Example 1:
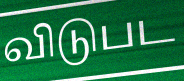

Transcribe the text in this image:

விடுபட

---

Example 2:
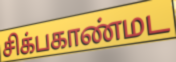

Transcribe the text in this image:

சிக்பகாண்மட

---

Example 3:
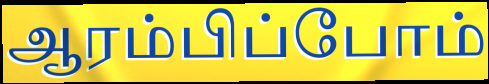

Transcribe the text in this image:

ஆரம்பிப்போம்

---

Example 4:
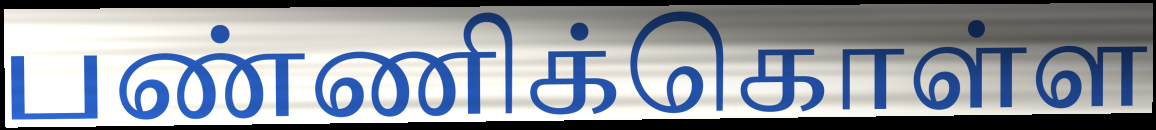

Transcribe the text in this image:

பண்ணிக்கொள்ள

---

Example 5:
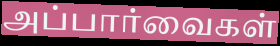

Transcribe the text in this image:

அப்பார்வைகள்